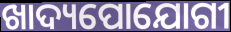
ଖାଦ୍ୟପୋଯୋଗୀ